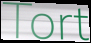
Tort